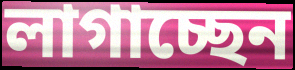
লাগাচ্ছেন